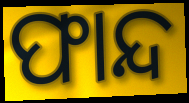
ଫାନ୍ଦ